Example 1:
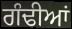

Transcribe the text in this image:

ਗੰਢੀਆਂ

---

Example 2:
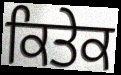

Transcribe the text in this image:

ਕਿਤੇਕ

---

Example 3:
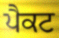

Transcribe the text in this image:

ਪੈਕਟ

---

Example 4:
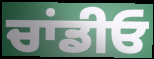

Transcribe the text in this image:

ਚਾਂਡੀਓ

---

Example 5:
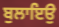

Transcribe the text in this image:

ਬੁਲਾਇਉ